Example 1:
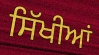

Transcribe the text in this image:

ਸਿੱਖੀਆਂ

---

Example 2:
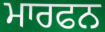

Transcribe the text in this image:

ਮਾਰਫਨ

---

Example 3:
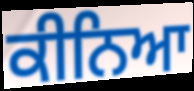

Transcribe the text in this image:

ਕੀਨਿਆ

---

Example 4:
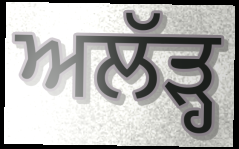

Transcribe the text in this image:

ਅਲੱੜ੍ਹ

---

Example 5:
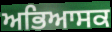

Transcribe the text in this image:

ਅਭਿਆਸਕ